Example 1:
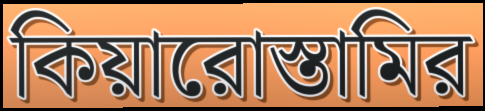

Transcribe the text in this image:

কিয়ারোস্তামির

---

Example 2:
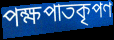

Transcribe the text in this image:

পক্ষপাতকৃপণ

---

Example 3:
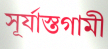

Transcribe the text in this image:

সূর্যাস্তগামী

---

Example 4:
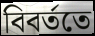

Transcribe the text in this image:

বিবর্ততে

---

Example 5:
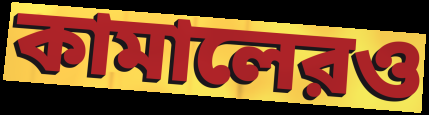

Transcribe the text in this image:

কামালেরও